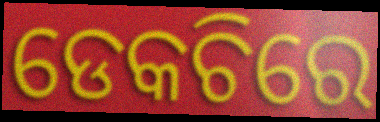
ଡେକଚିରେ